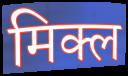
मिक्ल